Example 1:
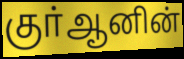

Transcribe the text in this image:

குர்ஆனின்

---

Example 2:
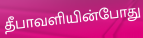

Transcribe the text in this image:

தீபாவளியின்போது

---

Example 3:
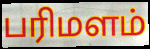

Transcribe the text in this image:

பரிமளம்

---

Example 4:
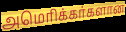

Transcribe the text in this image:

அமெரிக்கர்களான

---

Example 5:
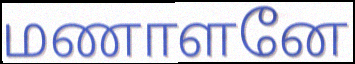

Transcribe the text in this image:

மணாளனே